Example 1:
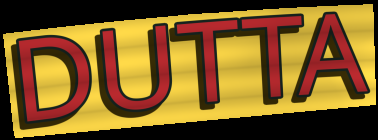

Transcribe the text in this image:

DUTTA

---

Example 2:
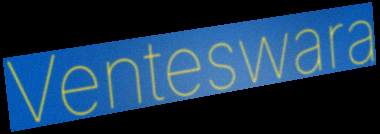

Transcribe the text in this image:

Venteswara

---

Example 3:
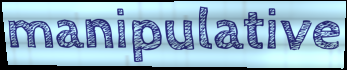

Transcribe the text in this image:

manipulative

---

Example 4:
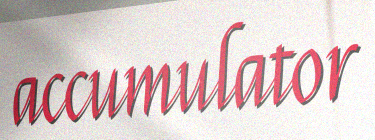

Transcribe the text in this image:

accumulator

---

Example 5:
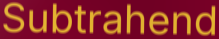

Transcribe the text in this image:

Subtrahend